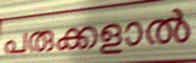
പരുക്കളാൽ